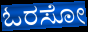
ಓರಸೋ